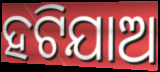
ହଟିଯାଅ